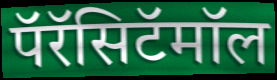
पॅरॅसिटॅमॉल